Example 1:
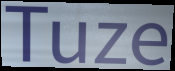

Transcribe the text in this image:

Tuze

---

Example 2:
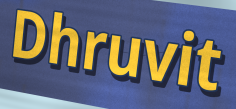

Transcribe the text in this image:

Dhruvit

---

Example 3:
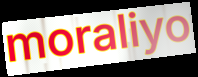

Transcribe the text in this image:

moraliyo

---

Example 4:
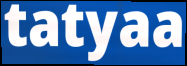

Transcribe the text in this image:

tatyaa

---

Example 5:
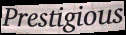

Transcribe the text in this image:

Prestigious